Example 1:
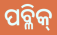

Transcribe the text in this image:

ପବ୍ଳିକ୍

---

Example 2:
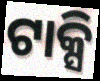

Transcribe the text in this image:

ଟାକ୍ସି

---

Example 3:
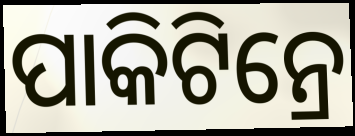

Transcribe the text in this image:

ପାକିଟିନ୍ରେ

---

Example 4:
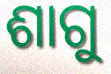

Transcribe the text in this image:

ଶାଗୁ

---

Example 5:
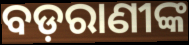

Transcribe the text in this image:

ବଡ଼ରାଣୀଙ୍କ